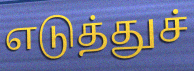
எடுத்துச்